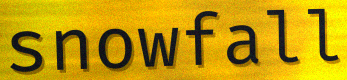
snowfall